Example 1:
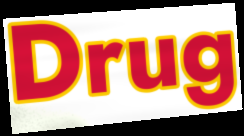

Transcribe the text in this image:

Drug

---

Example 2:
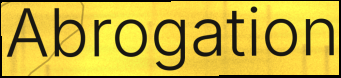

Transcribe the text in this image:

Abrogation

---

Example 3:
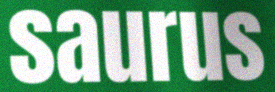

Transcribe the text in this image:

saurus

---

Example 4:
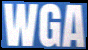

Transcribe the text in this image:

WGA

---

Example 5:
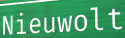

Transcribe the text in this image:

Nieuwolt